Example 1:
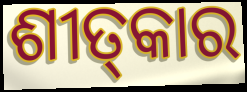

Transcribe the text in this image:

ଶୀତ୍‌କାର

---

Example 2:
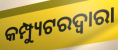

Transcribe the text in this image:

କମ୍ପ୍ୟୁଟରଦ୍ୱାରା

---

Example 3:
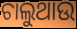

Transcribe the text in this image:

ଚାଲୁଥାଉ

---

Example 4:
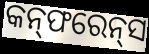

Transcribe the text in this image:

କନ୍‌ଫରେନ୍‌ସ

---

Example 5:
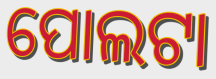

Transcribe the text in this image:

ପୋଲଟା